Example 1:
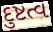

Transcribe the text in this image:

દુષ્ટત્વ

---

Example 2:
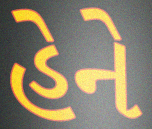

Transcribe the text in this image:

હેને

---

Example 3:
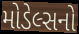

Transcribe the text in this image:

મોડેલ્સનો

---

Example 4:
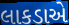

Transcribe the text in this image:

લાકડાએ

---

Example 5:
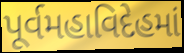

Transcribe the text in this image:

પૂર્વમહાવિદેહમાં